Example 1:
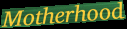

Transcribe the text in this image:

Motherhood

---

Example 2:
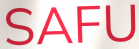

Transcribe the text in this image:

SAFU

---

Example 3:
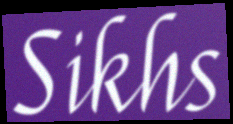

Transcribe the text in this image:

Sikhs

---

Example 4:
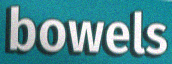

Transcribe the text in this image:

bowels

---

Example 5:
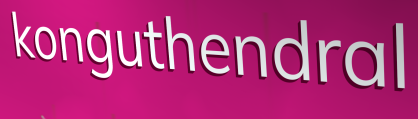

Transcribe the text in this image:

konguthendral